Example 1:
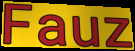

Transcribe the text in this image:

Fauz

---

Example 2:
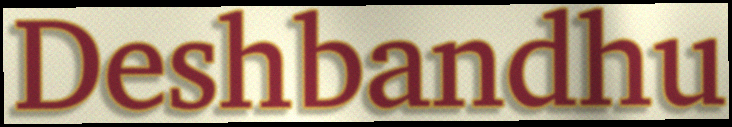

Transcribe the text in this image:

Deshbandhu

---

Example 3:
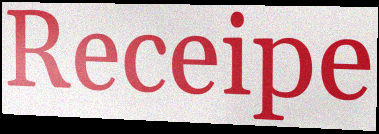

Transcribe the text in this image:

Receipe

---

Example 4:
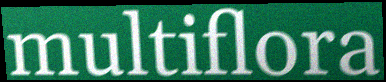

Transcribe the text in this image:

multiflora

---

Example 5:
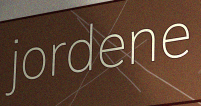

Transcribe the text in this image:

jordene